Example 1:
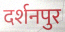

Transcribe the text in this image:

दर्शनपुर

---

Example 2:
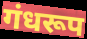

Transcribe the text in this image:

गंधरूप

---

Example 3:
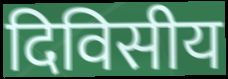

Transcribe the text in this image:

दिविसीय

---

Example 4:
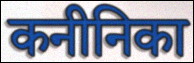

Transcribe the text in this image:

कनीनिका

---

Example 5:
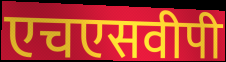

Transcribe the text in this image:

एचएसवीपी